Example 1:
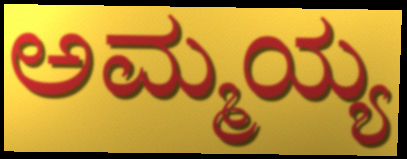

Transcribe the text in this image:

ಅಮ್ಮಯ್ಯ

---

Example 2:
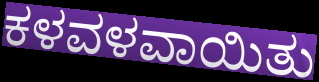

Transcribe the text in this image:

ಕಳವಳವಾಯಿತು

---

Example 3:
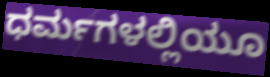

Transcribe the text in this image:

ಧರ್ಮಗಳಲ್ಲಿಯೂ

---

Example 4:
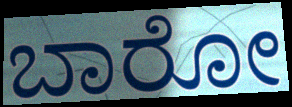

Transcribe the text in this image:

ಬಾರೋ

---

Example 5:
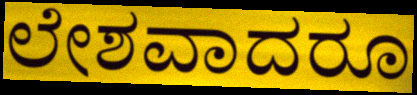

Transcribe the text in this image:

ಲೇಶವಾದರೂ